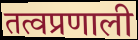
तत्वप्रणाली